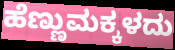
ಹೆಣ್ಣುಮಕ್ಕಳದು